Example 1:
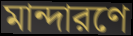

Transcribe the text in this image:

মান্দারণে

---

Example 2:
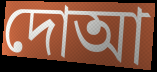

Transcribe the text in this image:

দোআ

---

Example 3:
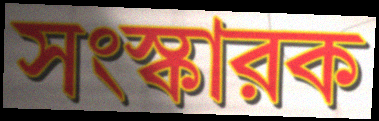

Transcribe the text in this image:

সংস্কারক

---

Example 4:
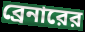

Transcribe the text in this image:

ব্রেনারের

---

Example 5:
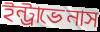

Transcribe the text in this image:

ইন্ট্রাভেনাস